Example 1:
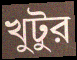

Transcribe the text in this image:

খুটুর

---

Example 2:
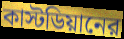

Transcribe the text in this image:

কাস্টডিয়ানের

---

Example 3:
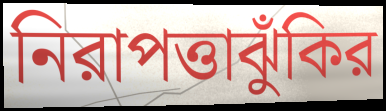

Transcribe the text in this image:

নিরাপত্তাঝুঁকির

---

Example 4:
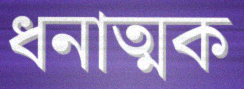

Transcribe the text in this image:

ধনাত্মক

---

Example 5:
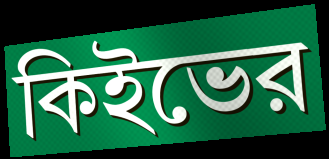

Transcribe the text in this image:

কিইভের